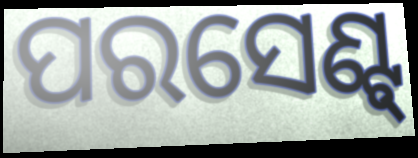
ପରସେଣ୍ଟ୍